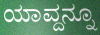
ಯಾವ್ದನ್ನೂ